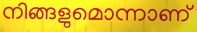
നിങ്ങളുമൊന്നാണ്